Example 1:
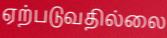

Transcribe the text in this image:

ஏற்படுவதில்லை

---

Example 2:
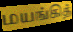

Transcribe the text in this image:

மயங்கித்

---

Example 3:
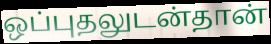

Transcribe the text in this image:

ஒப்புதலுடன்தான்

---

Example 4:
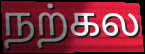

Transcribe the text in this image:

நற்கல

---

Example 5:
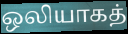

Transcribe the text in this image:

ஒலியாகத்